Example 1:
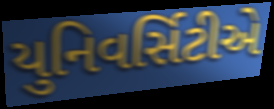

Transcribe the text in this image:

યુનિવર્સિટીએ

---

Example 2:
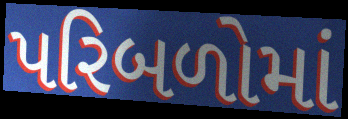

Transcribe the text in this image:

પરિબળોમાં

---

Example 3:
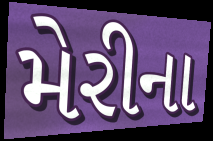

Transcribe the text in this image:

મેરીના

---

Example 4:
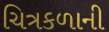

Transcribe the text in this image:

ચિત્રકળાની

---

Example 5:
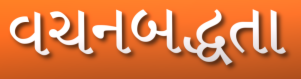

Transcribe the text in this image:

વચનબદ્ધતા